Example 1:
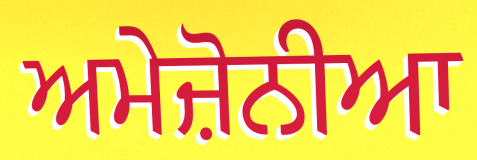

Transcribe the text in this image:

ਅਮੇਜ਼ੋਨੀਆ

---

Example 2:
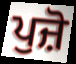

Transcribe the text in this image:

ਪੁਜ਼ੋ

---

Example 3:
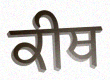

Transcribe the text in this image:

ਕੀਥ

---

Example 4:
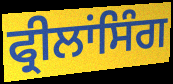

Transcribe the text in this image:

ਫ੍ਰੀਲਾਂਸਿੰਗ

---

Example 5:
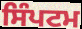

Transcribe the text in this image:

ਸਿੰਪਟਮ